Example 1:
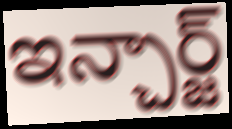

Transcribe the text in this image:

ఇన్చార్జ్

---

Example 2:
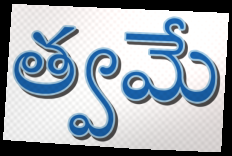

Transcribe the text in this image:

త్వమే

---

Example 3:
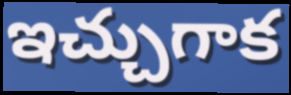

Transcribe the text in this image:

ఇచ్చుగాక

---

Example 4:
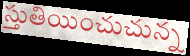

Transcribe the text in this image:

స్తుతియించుచున్న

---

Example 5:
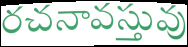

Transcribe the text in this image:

రచనావస్తువు